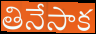
తినేసాక